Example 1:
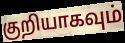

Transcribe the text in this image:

குறியாகவும்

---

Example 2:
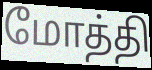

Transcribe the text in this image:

மோத்தி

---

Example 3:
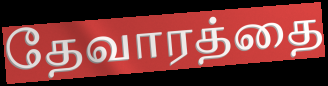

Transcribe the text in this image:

தேவாரத்தை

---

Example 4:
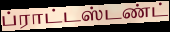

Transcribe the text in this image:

ப்ராட்டஸ்டண்ட்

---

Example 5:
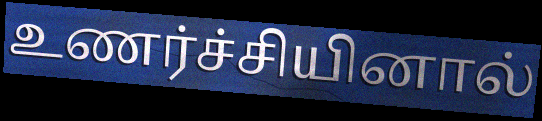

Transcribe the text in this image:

உணர்ச்சியினால்